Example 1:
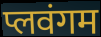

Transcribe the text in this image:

प्लवंगम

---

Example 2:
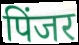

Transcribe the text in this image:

पिंजर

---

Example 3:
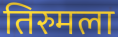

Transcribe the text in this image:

तिरुमला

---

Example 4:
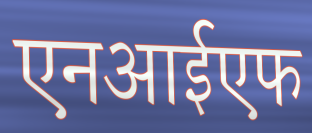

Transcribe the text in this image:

एनआईएफ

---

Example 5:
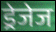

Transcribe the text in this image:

ड्रेजेज